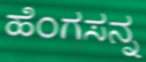
ಹೆಂಗಸನ್ನ